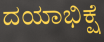
ದಯಾಭಿಕ್ಷೆ